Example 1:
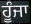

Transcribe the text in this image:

ਹੂੰਜਾ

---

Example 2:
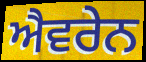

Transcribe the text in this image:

ਐਵਰੇਨ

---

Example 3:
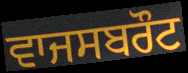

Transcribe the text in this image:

ਵਾਜਸਬਰੌਟ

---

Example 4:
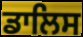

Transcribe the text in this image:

ਡਾਲਿਸ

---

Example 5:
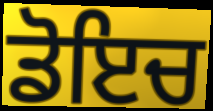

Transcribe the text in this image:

ਡੋਇਚ